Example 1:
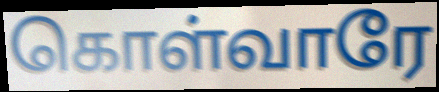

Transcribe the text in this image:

கொள்வாரே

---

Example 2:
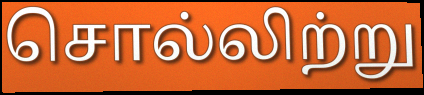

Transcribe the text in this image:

சொல்லிற்று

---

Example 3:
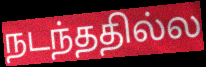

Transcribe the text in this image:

நடந்ததில்ல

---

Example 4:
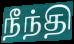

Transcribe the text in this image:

நீந்தி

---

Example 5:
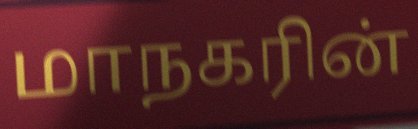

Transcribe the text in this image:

மாநகரின்